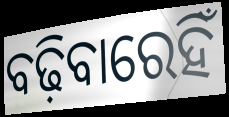
ବଢ଼ିବାରେହିଁ